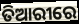
ତିଆରୀରେ